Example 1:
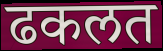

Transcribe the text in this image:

ढकलत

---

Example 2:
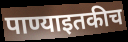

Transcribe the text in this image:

पाण्याइतकीच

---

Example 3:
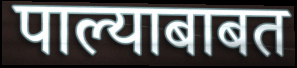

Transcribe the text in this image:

पाल्याबाबत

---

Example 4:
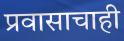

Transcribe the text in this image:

प्रवासाचाही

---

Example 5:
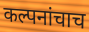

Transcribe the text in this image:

कल्पनांचाच